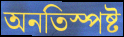
অনতিস্পষ্ট